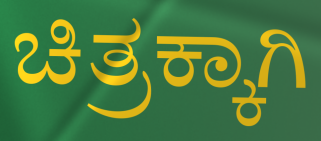
ಚಿತ್ರಕ್ಕಾಗಿ